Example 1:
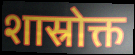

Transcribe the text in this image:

शास्रोक्त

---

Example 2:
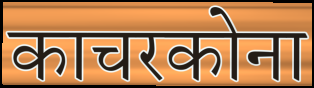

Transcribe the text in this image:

काचरकोना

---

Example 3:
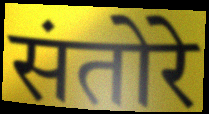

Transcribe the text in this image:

संतोरे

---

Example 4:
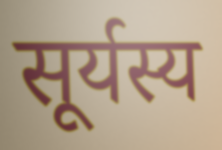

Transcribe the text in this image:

सूर्यस्य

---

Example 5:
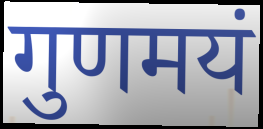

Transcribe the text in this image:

गुणमयं